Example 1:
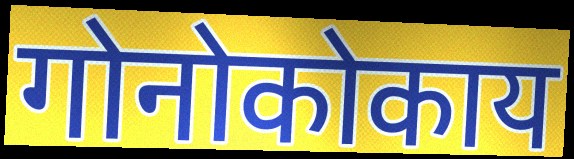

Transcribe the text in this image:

गोनोकोकाय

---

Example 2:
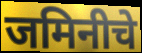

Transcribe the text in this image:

जमिनीचे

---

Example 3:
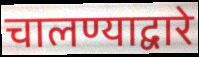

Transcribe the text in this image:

चालण्याद्वारे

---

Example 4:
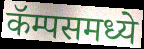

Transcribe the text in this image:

कॅम्पसमध्ये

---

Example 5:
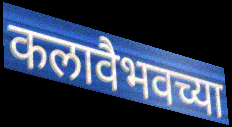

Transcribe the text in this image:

कलावैभवच्या